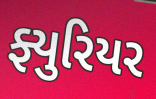
ફ્યુરિયર